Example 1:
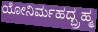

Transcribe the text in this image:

ಯೋನಿರ್ಮಹದ್ಬ್ರಹ್ಮ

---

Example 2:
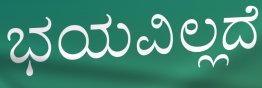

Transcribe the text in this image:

ಭಯವಿಲ್ಲದೆ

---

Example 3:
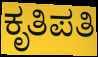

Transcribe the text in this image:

ಕೃತಿಪತಿ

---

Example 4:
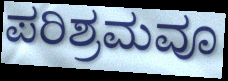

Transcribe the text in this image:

ಪರಿಶ್ರಮವೂ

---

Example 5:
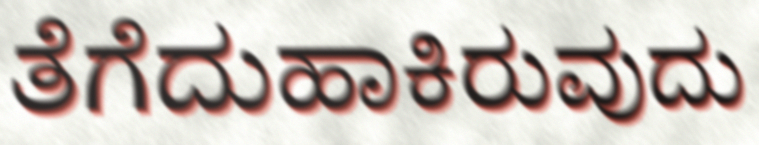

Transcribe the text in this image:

ತೆಗೆದುಹಾಕಿರುವುದು